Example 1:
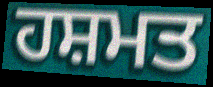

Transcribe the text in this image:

ਹਸ਼ਮਤ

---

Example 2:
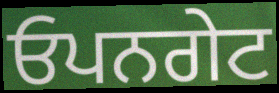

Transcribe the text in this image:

ਓਪਨਗੇਟ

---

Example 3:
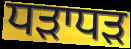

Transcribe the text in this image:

ਧੜਾਧੜ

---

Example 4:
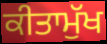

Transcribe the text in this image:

ਕੀਤਾਮੁੱਖ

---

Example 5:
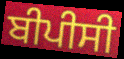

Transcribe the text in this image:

ਬੀਪੀਸੀ